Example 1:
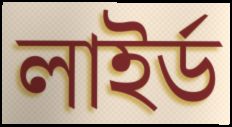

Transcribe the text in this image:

লাইর্ড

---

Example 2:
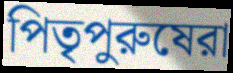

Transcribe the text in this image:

পিতৃপুরুষেরা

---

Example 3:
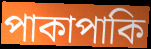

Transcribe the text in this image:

পাকাপাকি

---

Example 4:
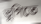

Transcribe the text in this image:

ভুগিতে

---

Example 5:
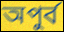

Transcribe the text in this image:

অপুর্ব